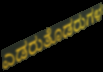
ಎಡರುತೊಡರುಗಳ